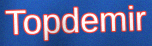
Topdemir